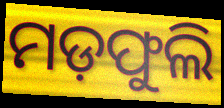
ମଡ଼ଫୁଲି